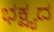
ಭಕ್ಷ್ಯದ